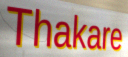
Thakare